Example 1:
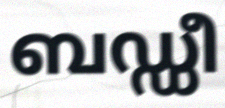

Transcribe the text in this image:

ബഡ്ഡീ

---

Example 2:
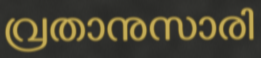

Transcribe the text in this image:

വ്രതാനുസാരി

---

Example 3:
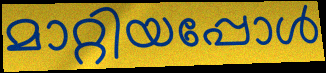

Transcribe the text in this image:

മാറ്റിയപ്പോൾ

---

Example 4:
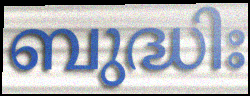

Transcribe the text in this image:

ബുദ്ധിഃ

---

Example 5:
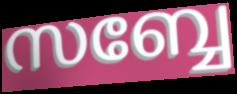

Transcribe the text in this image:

സബ്ബേ